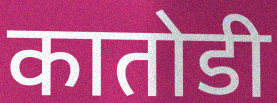
कातोडी